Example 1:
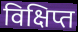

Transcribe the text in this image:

विक्षिप्त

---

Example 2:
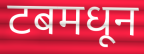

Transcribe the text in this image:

टबमधून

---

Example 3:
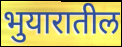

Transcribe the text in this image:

भुयारातील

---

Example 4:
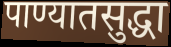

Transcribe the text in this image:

पाण्यातसुद्धा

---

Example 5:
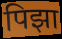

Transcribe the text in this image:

पिझा